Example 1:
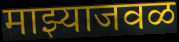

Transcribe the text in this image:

माझ्याजवळ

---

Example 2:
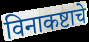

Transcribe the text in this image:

विनाकष्टाचे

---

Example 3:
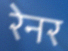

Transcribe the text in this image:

रेनर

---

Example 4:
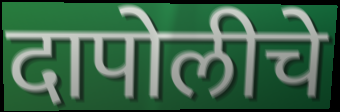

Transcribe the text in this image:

दापोलीचे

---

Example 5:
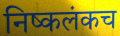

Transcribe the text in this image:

निष्कलंकच